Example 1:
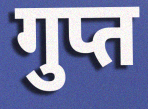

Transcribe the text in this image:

गुप्त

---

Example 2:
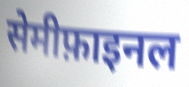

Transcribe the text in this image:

सेमीफ़ाइनल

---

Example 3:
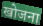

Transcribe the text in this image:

खोजना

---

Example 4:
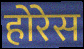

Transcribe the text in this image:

होरेस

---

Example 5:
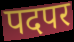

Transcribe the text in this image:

पदपर